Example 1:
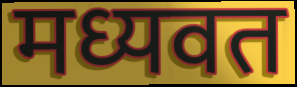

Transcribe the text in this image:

मध्यवत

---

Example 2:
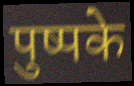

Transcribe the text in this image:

पुष्पके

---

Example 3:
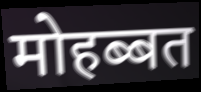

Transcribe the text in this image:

मोहब्बत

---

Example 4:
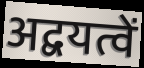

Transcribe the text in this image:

अद्वयत्वें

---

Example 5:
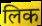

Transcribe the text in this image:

लिक